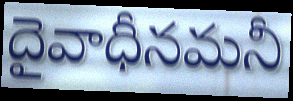
దైవాధీనమనీ